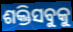
ଶକ୍ତିସବୁକୁ